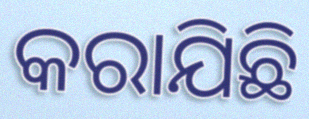
କରାଯିଛି